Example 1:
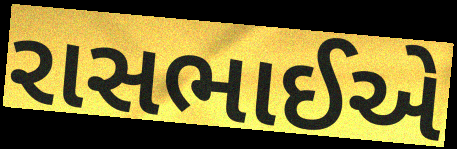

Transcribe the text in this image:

રાસભાઈએ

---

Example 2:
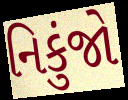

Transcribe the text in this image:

નિકુંજો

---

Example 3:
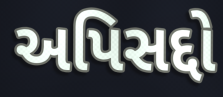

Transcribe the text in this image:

અપિસદ્દો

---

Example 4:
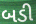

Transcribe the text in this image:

બડી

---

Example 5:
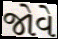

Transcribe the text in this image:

જોવે